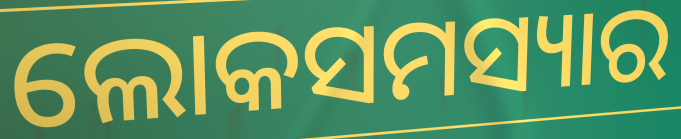
ଲୋକସମସ୍ୟାର